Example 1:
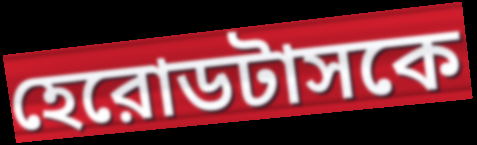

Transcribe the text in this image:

হেরোডটাসকে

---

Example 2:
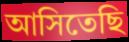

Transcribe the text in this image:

আসিতেছি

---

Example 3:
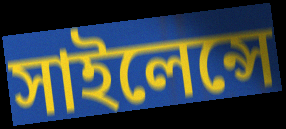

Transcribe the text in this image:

সাইলেন্সে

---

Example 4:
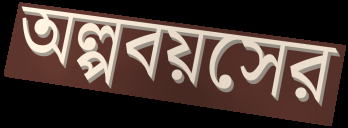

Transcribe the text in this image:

অল্পবয়সের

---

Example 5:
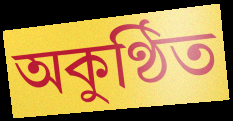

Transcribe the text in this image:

অকুণ্ঠিত